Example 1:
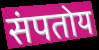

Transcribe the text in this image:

संपतोय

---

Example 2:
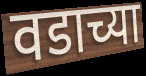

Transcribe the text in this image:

वडाच्या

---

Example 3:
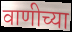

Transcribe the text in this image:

वाणीच्या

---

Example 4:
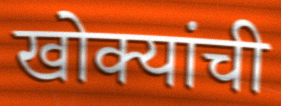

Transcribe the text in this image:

खोक्यांची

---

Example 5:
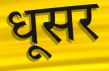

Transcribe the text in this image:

धूसर